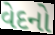
વેદનો